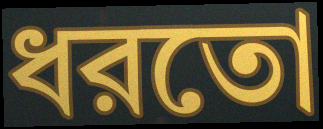
ধরতো